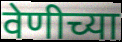
वेणीच्या